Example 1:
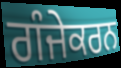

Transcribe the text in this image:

ਗੰਜੇਕਰਨ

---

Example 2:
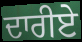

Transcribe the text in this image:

ਦਾਰੀਏ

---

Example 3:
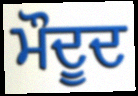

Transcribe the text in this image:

ਮੌਦੂਦ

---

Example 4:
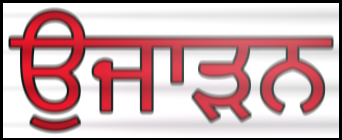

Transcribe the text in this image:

ਉਜਾੜਨ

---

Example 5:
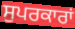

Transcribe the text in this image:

ਸੁਪਰਕਾਰਾਂ